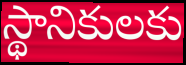
స్థానికులకు